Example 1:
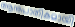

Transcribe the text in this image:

ആനുപാതികമായി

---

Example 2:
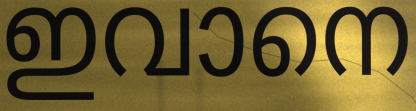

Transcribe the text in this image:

ഇവാനെ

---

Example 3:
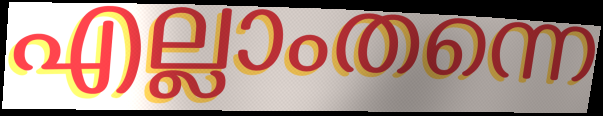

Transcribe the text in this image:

എല്ലാംതന്നെ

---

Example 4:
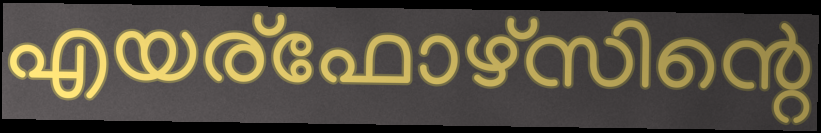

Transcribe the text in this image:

എയര്ഫോഴ്സിന്റെ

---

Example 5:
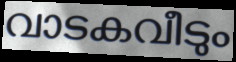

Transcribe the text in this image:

വാടകവീടും